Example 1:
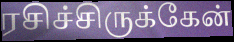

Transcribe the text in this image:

ரசிச்சிருக்கேன்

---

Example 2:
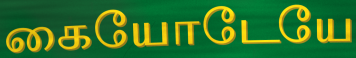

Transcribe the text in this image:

கையோடேயே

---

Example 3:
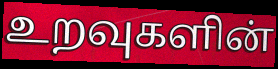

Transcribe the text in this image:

உறவுகளின்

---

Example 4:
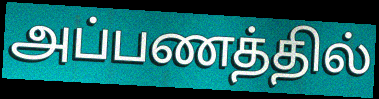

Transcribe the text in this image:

அப்பணத்தில்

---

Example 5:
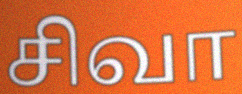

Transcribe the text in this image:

சிவா